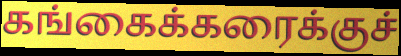
கங்கைக்கரைக்குச்